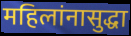
महिलांनासुद्धा